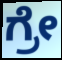
ಗ್ರೇ